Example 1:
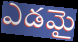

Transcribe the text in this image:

ఎడమై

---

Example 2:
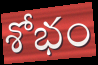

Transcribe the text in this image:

శోభం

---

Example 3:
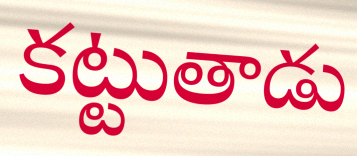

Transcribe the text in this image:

కట్టుతాడు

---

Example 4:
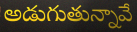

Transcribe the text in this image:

అడుగుతున్నావే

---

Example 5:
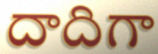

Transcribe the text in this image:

దాదిగా